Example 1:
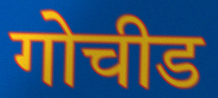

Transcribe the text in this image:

गोचीड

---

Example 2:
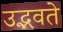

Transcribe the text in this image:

उद्भवते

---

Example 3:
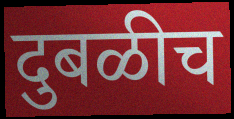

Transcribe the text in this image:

दुबळीच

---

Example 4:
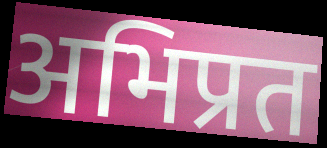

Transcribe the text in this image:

अभिप्रत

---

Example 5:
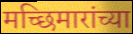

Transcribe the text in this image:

मच्छिमारांच्या